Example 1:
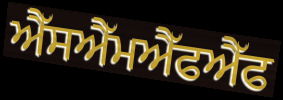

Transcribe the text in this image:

ਐੱਸਐੱਮਐੱਫਐੱਫ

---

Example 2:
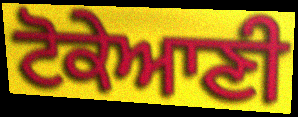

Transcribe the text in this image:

ਟੋਕੇਆਣੀ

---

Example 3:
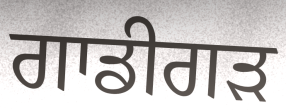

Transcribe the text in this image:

ਗਾਡੀਗੜ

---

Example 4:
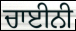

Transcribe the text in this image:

ਚਾਈਨੀ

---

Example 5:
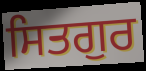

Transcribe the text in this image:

ਸਿਤਗੁਰ